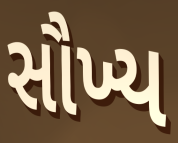
સૌખ્ય